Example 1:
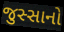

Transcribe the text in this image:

જુસ્સાનો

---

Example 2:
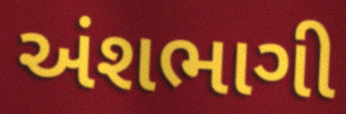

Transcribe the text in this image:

અંશભાગી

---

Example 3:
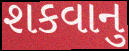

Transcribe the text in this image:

શકવાનુ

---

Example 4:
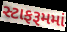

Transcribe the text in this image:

સ્ટાફરૂમમાં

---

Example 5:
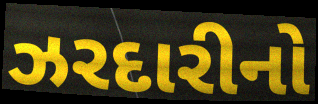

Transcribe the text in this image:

ઝરદારીનો